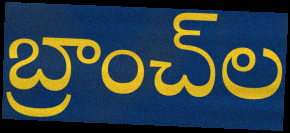
బ్రాంచ్‌ల